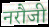
नरौजी